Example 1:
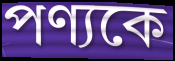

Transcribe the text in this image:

পণ্যকে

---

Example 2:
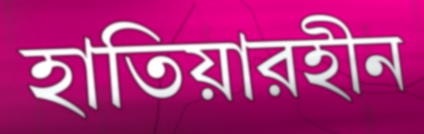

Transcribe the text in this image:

হাতিয়ারহীন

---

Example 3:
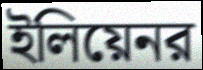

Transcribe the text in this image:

ইলিয়েনর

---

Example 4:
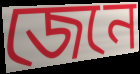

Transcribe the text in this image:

জেনে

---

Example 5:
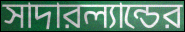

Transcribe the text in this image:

সাদারল্যান্ডের